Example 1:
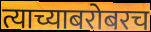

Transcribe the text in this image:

त्याच्याबरोबरच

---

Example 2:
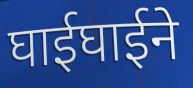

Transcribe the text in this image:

घाईघाईने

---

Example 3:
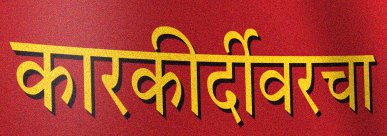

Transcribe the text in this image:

कारकीर्दीवरचा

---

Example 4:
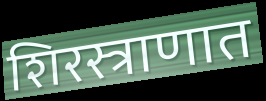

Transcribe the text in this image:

शिरस्त्राणात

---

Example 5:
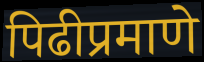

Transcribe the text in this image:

पिढीप्रमाणे